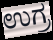
ಉಗ್ರ